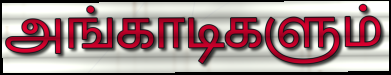
அங்காடிகளும்